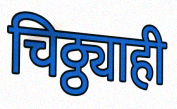
चिठ्ठ्याही